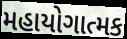
મહાયોગાત્મક